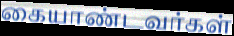
கையாண்டவர்கள்